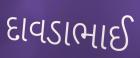
દાવડાભાઈ